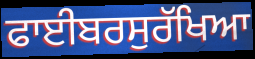
ਫਾਈਬਰਸੁਰੱਖਿਆ